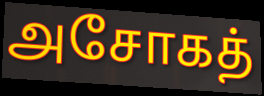
அசோகத்